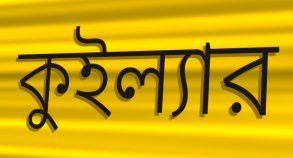
কুইল্যার